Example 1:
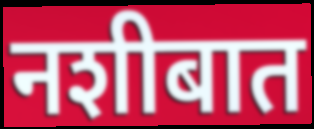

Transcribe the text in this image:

नशीबात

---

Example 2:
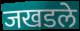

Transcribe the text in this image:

जखडले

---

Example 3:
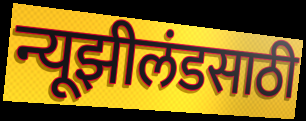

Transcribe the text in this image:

न्यूझीलंडसाठी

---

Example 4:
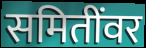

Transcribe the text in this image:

समितींवर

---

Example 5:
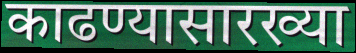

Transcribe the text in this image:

काढण्यासारख्या